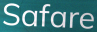
Safare